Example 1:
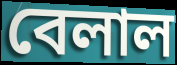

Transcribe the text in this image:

বেলাল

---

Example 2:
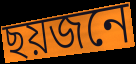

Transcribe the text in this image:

ছয়জনে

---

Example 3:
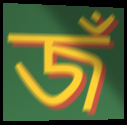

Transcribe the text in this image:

জঁ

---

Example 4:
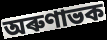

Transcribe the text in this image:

অৰুণাভক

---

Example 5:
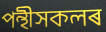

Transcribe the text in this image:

পন্থীসকলৰ